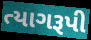
ત્યાગરૂપી